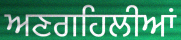
ਅਣਗਹਿਲੀਆਂ